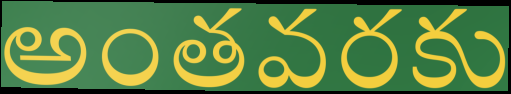
అంతవరకు